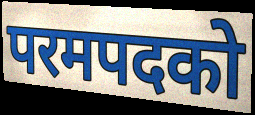
परमपदको